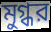
মুগ্ধর